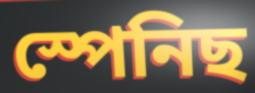
স্পেনিছ